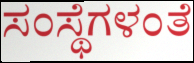
ಸಂಸ್ಥೆಗಳಂತೆ